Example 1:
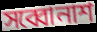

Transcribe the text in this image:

সব্বোনাশ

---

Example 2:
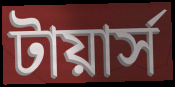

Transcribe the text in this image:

টায়ার্স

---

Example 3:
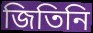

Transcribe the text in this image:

জিতিনি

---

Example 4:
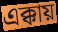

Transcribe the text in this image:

এক্কায়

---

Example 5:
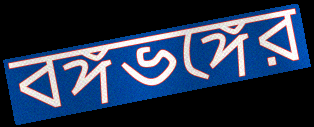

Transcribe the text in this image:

বঙ্গভঙ্গের